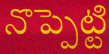
నొప్పెట్టి